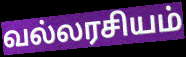
வல்லரசியம்